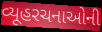
વ્યૂહરચનાઓની